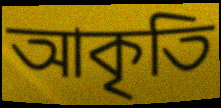
আকৃতি